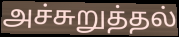
அச்சுறுத்தல்